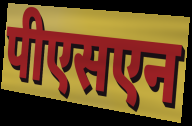
पीएसएन